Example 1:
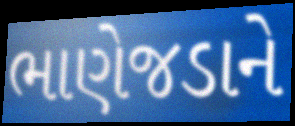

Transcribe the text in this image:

ભાણેજડાને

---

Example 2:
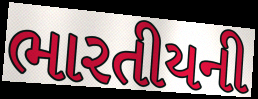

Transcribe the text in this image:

ભારતીયની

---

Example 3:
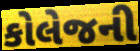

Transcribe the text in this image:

કોલેજની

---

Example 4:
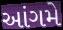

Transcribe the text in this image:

આંગમે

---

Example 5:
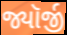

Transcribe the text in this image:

જ્યૉર્જી